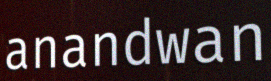
anandwan